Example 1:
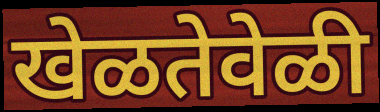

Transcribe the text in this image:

खेळतेवेळी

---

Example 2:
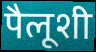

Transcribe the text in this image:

पैलूशी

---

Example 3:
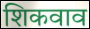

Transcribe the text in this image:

शिकवाव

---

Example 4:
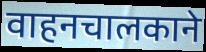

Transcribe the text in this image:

वाहनचालकाने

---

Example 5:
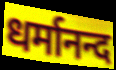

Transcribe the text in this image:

धर्मानन्द